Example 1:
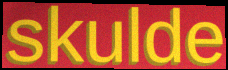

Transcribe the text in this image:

skulde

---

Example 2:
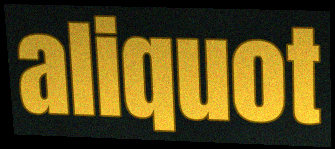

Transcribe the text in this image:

aliquot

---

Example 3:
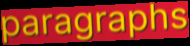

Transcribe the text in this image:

paragraphs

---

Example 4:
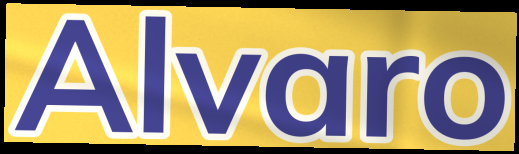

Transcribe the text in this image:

Alvaro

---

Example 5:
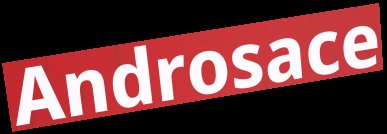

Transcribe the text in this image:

Androsace